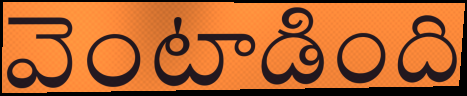
వెంటాడింది